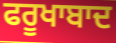
ਫਰੂਖਾਬਾਦ